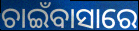
ଚାଇଁବାସାରେ